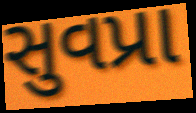
સુવપ્રા